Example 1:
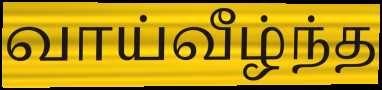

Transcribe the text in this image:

வாய்வீழ்ந்த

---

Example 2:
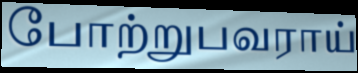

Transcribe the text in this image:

போற்றுபவராய்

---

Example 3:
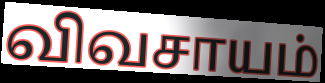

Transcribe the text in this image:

விவசாயம்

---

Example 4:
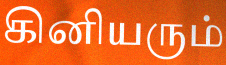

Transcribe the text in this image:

கினியரும்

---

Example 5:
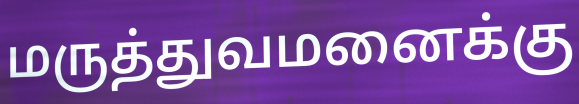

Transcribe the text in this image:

மருத்துவமனைக்கு